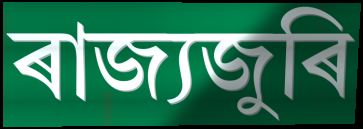
ৰাজ্যজুৰি